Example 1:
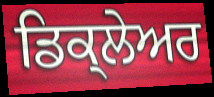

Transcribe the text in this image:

ਡਿਕ੍ਲੇਅਰ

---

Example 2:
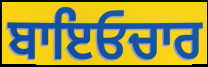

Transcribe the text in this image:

ਬਾਇਓਚਾਰ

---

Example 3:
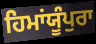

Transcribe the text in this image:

ਹਿਮਾਂਯੂੰਪੁਰਾ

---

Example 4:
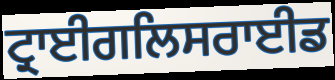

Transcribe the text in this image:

ਟ੍ਰਾਈਗਲਿਸਰਾਈਡ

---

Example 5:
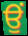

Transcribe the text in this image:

ਉਂ